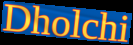
Dholchi